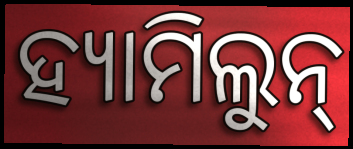
ହ୍ୟାମିଲୁନ୍